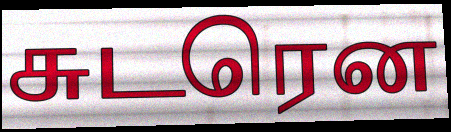
சுடரென